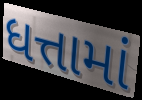
ધત્તામાં